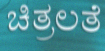
ಚಿತ್ರಲತೆ